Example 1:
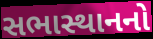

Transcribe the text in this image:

સભાસ્થાનનો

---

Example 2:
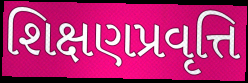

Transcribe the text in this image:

શિક્ષણપ્રવૃત્તિ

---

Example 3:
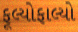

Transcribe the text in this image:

ફૂલ્યોફાલ્યો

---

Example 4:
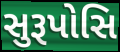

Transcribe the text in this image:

સુરૂપોસિ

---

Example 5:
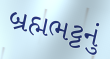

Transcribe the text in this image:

બ્રહ્મભટ્ટનું